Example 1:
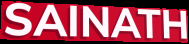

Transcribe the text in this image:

SAINATH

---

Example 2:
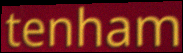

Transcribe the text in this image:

tenham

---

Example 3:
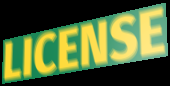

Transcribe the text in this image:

LICENSE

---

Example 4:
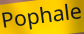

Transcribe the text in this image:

Pophale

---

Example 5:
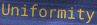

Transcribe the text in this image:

Uniformity